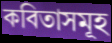
কবিতাসমূহ